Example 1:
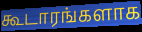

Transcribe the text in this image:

கூடாரங்களாக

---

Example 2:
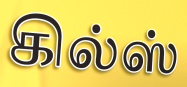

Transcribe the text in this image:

கில்ஸ்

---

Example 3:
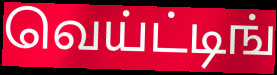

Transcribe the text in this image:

வெய்ட்டிங்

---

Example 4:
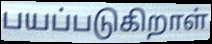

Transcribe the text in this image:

பயப்படுகிறாள்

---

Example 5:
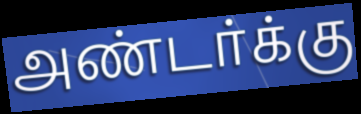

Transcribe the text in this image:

அண்டர்க்கு